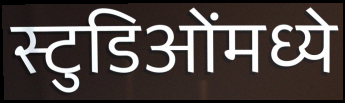
स्टुडिओंमध्ये